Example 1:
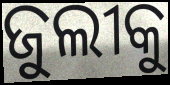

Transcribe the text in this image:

ଜୁଲୀକୁ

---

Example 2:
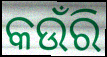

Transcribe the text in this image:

କଉଁରି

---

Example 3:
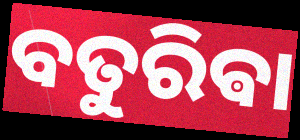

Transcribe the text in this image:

ବତୁରିଵା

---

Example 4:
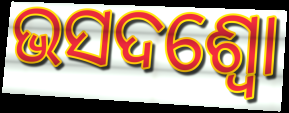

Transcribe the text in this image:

ଭସଦଶ୍ଵୋ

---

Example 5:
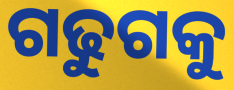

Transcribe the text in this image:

ଗଢୁଗକୁ